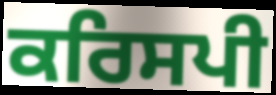
ਕਰਿਸਪੀ